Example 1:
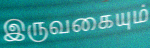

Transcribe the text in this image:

இருவகையும்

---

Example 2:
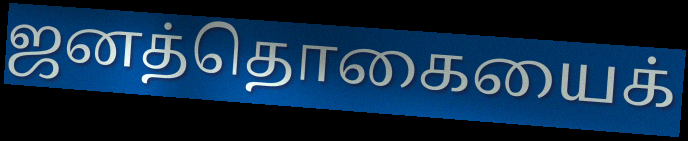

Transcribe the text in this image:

ஜனத்தொகையைக்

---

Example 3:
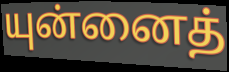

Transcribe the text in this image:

யுன்னைத்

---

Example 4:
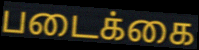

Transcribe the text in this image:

படைக்கை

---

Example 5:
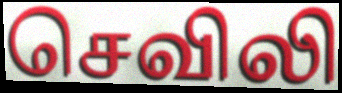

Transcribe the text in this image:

செவிலி